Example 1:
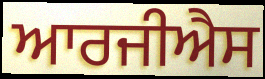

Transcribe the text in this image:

ਆਰਜੀਐਸ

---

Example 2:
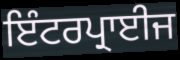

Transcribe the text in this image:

ਇੰਟਰਪ੍ਰਾਈਜ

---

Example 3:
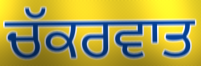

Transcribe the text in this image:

ਚੱਕਰਵਾਤ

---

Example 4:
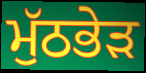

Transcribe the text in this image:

ਮੁੱਠਭੇੜ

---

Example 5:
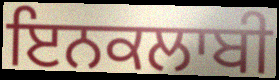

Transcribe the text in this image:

ਇਨਕਲਾਬੀ